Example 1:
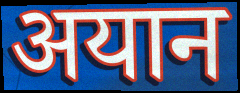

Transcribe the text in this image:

अयान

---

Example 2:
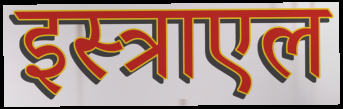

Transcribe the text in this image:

इस्त्राएल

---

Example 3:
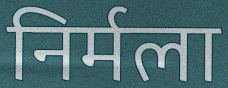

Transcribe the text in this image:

निर्मला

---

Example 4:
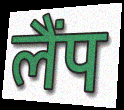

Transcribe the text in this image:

लैंप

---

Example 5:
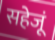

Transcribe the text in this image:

सहेजूं